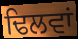
ਢਿਲਵਾਂ